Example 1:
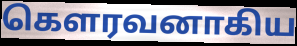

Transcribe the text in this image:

கௌரவனாகிய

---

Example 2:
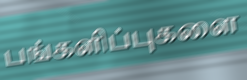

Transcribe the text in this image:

பங்களிப்புகளை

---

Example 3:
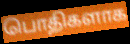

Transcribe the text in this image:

பொதிகளாக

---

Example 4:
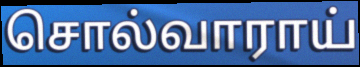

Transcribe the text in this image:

சொல்வாராய்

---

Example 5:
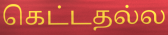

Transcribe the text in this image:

கெட்டதல்ல